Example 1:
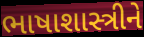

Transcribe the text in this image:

ભાષાશાસ્ત્રીને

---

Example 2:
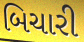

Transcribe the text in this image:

બિચારી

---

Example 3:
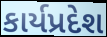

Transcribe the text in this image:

કાર્યપ્રદેશ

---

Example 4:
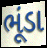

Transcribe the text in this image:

ભૂંડા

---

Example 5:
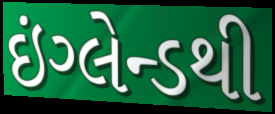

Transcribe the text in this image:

ઇંગ્લેન્ડથી